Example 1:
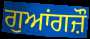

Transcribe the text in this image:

ਗੁਆਂਗਜ਼ੌ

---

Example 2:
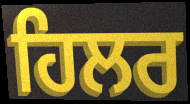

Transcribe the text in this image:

ਹਿਲਰ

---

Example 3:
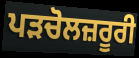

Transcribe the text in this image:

ਪੜਚੋਲਜ਼ਰੂਰੀ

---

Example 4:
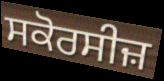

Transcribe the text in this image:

ਸਕੋਰਸੀਜ਼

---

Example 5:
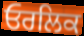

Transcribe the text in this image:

ਓਰਲਿਕ